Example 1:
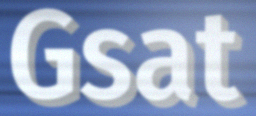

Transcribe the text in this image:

Gsat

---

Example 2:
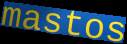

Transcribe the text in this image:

mastos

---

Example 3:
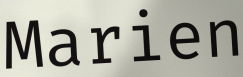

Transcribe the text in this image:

Marien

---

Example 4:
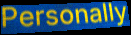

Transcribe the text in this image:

Personally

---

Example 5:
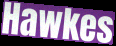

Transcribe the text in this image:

Hawkes